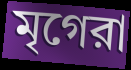
মৃগেরা